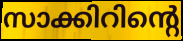
സാക്കിറിന്റെ